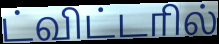
ட்விட்டரில்